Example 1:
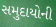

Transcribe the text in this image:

સમુદાયોની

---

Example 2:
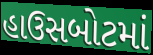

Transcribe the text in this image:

હાઉસબોટમાં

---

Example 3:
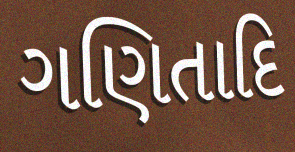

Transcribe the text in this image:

ગણિતાદિ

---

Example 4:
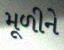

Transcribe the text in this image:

મૂળીને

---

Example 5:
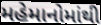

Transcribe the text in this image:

મહેમાનોમાંથી